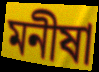
মনীষা